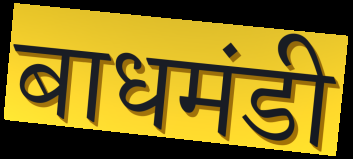
बाधमंडी